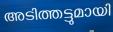
അടിത്തട്ടുമായി